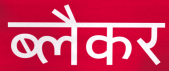
ब्लैकर